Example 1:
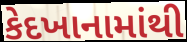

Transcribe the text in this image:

કેદખાનામાંથી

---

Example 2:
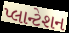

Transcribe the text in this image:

પ્લાન્ટેશન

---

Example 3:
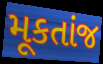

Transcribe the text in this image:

મૂકતાંજ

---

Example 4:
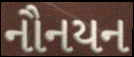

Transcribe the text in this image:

નૌનયન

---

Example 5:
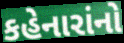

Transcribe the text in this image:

કહેનારાંનો